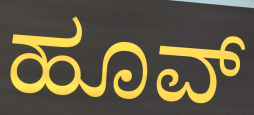
ಹೂವ್